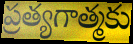
ప్రత్యగాత్మకు